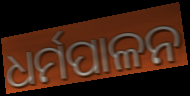
ଧର୍ମପାଳନ